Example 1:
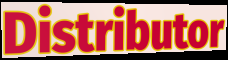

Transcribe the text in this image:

Distributor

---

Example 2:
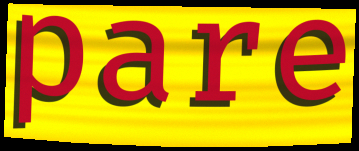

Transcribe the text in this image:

pare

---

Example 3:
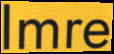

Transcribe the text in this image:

Imre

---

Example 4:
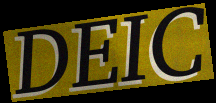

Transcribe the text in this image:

DEIC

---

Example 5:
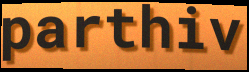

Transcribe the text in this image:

parthiv